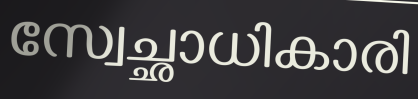
സ്വേച്ഛാധികാരി